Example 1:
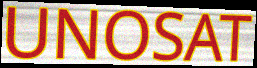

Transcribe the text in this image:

UNOSAT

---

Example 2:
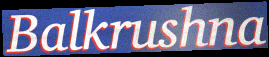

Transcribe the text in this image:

Balkrushna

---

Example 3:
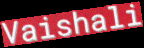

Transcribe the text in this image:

Vaishali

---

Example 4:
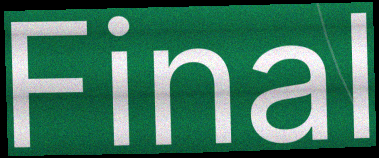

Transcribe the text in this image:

Final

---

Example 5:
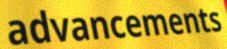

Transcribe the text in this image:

advancements